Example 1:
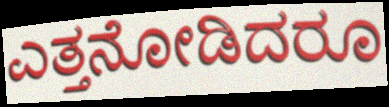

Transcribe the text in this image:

ಎತ್ತನೋಡಿದರೂ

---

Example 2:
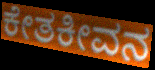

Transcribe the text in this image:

ಕೇತಕೀವನ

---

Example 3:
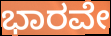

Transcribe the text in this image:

ಭಾರವೇ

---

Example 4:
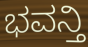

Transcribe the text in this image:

ಭವನ್ತಿ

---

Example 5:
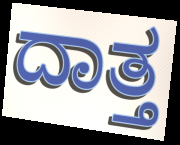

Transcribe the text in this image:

ದಾತ್ತ